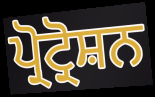
ਪ੍ਰੋਟ੍ਰੋਸ਼ਨ